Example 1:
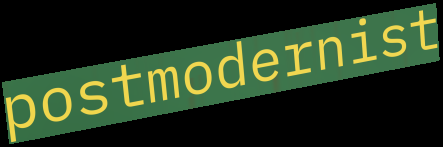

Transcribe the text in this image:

postmodernist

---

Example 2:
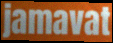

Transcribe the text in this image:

jamavat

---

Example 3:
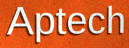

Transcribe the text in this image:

Aptech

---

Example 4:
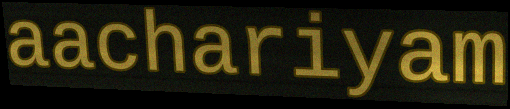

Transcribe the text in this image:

aachariyam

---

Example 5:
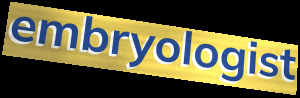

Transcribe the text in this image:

embryologist